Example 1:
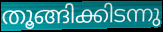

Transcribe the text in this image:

തൂങ്ങിക്കിടന്നു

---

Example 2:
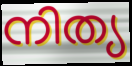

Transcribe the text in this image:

നിത്യ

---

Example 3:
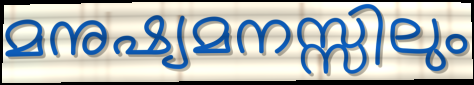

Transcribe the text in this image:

മനുഷ്യമനസ്സിലും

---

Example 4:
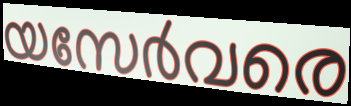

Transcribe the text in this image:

യസേർവരെ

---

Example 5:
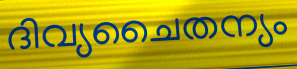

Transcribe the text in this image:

ദിവ്യചൈതന്യം